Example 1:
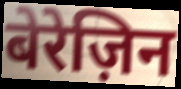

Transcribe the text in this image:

बेरेज़िन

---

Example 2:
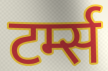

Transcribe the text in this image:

टर्म्स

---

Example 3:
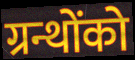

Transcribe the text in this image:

ग्रन्थोंको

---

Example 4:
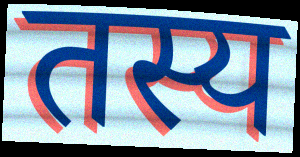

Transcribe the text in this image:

तस्य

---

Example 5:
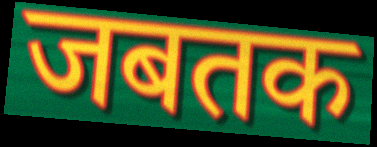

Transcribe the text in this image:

जबतक